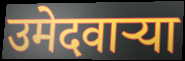
उमेदवाऱ्या